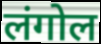
लंगोल